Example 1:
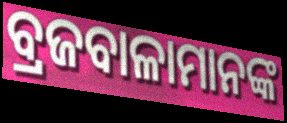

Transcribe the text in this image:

ବ୍ରଜବାଳାମାନଙ୍କ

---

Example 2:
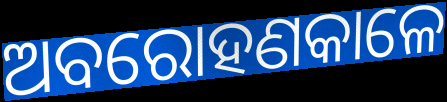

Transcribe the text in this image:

ଅବରୋହଣକାଳେ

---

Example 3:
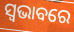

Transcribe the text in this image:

ସ୍ବଭାବରେ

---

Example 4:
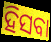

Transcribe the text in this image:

ହିସବା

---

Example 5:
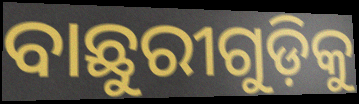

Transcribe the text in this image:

ବାଛୁରୀଗୁଡ଼ିକୁ